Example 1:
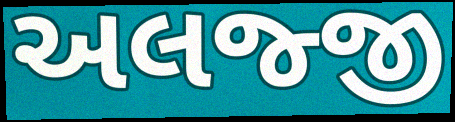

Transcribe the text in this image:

અલજ્જી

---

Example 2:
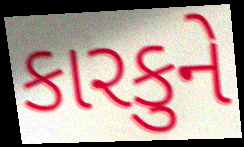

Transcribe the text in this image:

કારકુને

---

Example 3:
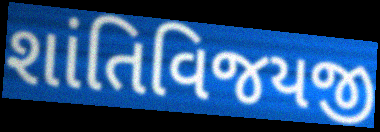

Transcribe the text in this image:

શાંતિવિજયજી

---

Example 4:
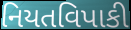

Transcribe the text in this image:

નિયતવિપાકી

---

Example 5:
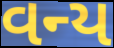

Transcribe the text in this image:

વન્ય